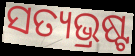
ସତ୍ୟଭ୍ରଷ୍ଟ